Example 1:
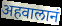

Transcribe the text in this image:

अहवालानं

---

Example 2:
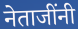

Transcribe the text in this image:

नेताजींनी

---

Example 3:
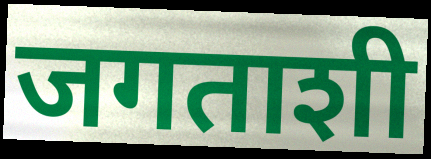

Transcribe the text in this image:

जगताशी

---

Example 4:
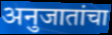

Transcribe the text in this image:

अनुजातांचा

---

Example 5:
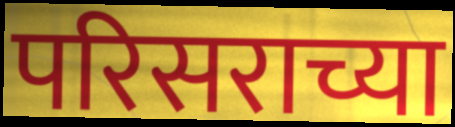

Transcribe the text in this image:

परिसराच्या